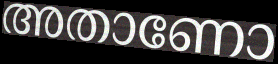
അതാണോ